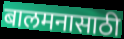
बालमनासाठी